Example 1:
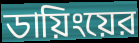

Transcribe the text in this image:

ডায়িংয়ের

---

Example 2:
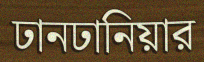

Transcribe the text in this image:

ঢানঢানিয়ার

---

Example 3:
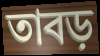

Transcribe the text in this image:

তাবড়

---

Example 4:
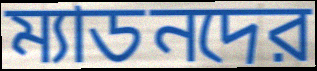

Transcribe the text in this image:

ম্যাডনদের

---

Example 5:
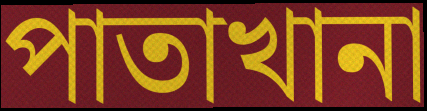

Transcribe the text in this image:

পাতাখানা